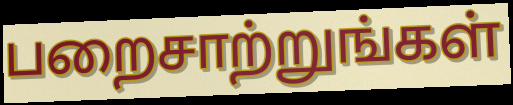
பறைசாற்றுங்கள்